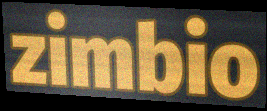
zimbio